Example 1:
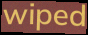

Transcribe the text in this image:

wiped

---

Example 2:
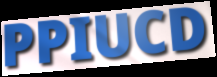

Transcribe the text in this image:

PPIUCD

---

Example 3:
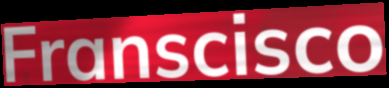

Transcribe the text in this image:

Franscisco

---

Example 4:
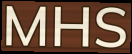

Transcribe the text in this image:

MHS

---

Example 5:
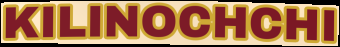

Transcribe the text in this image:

KILINOCHCHI